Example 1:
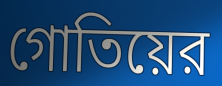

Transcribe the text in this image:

গোতিয়ের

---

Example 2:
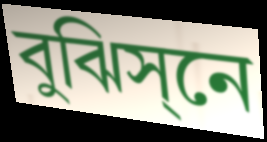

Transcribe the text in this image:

বুঝিস্‌নে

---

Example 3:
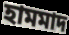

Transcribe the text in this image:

হামমাদ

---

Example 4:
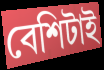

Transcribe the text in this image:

বেশিটাই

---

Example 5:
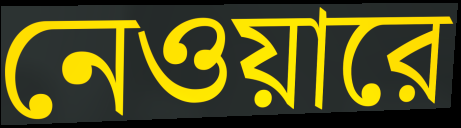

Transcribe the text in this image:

নেওয়ারে